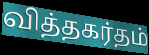
வித்தகர்தம்